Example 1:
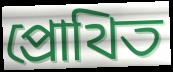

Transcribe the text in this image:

প্ৰোথিত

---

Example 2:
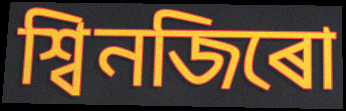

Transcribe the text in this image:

শ্বিনজিৰো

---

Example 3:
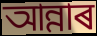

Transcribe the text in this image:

আন্নাৰ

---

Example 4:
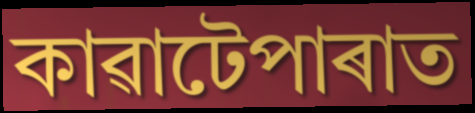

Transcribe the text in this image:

কাৱাটেপাৰাত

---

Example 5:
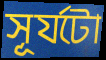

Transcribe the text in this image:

সূৰ্যটো